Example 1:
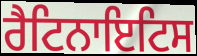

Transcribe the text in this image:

ਰੈਟਿਨਾਇਟਿਸ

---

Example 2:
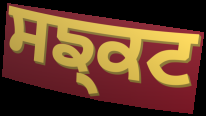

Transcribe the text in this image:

ਸਙ੍ਕਟ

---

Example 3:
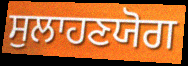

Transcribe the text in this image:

ਸੁਲਾਹਣਯੋਗ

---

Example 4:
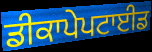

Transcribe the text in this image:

ਡੀਕਾਪੇਪਟਾਈਡ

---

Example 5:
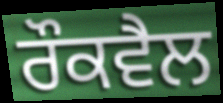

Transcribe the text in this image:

ਰੌਕਵੈਲ